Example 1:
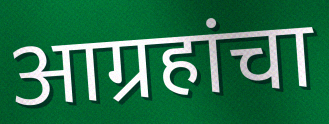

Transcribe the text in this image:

आग्रहांचा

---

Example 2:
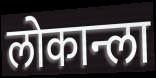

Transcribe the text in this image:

लोकान्ला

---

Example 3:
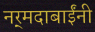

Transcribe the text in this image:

नर्मदाबाईंनी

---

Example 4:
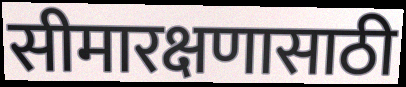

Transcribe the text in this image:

सीमारक्षणासाठी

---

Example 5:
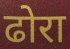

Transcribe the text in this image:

ढोरा